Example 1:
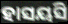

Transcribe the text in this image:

ହାସୟସି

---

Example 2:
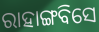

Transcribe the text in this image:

ରାହାଙ୍ଗବିସେ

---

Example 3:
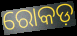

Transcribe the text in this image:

ରୋକଡ଼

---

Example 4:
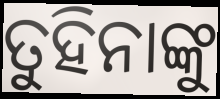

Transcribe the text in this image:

ତୁହିନାଙ୍କୁ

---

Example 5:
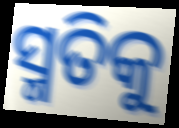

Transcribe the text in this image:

ସ୍ମତିକୁ